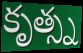
కృత్స్న